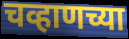
चव्हाणच्या